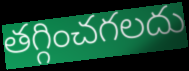
తగ్గించగలదు